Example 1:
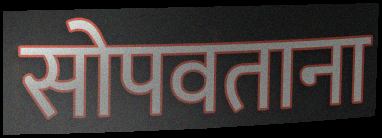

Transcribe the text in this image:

सोपवताना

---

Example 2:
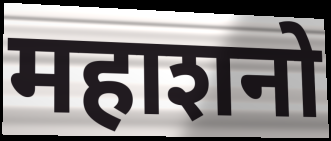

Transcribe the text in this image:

महाशनो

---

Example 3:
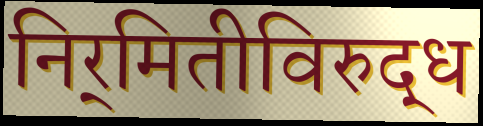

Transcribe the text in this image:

निर्मितीविरुद्ध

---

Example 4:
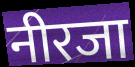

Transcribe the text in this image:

नीरजा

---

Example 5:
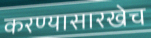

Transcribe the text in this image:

करण्यासारखेच